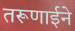
तरूणाईने